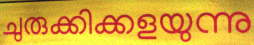
ചുരുക്കിക്കളയുന്നു